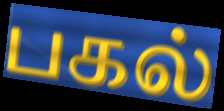
பகல்